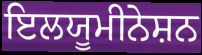
ਇਲਯੂਮੀਨੇਸ਼ਨ